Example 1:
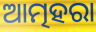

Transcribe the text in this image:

ଆତ୍ମହରା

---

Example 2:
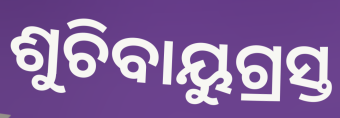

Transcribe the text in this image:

ଶୁଚିବାୟୁଗ୍ରସ୍ତ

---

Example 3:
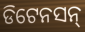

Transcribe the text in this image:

ଡିଟେନସନ୍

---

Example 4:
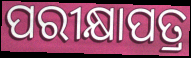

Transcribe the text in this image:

ପରୀକ୍ଷାପତ୍ର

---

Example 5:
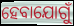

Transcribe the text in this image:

ହେବାଯୋଗୁଁ